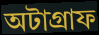
অটাগ্রাফ